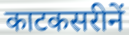
काटकसरीनें